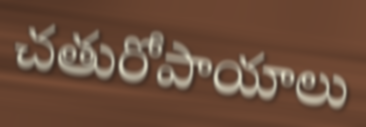
చతురోపాయాలు